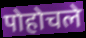
पोहोचले